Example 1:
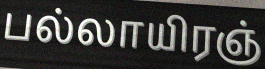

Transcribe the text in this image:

பல்லாயிரஞ்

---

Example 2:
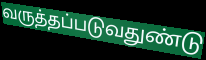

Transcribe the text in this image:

வருத்தப்படுவதுண்டு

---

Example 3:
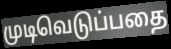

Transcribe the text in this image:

முடிவெடுப்பதை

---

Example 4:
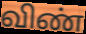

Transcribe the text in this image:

விண்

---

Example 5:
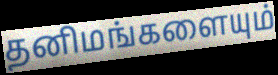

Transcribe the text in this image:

தனிமங்களையும்